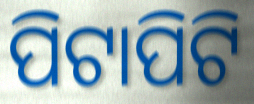
ପିଟାପିଟି